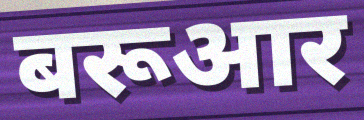
बरूआर